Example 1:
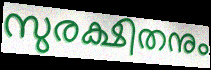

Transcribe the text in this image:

സുരക്ഷിതനും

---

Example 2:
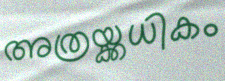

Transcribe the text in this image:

അത്രയ്ക്കധികം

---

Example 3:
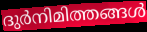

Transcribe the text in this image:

ദുർനിമിത്തങ്ങൾ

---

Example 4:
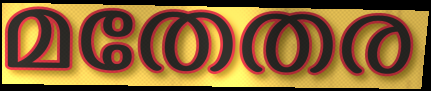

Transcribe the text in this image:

മതേതര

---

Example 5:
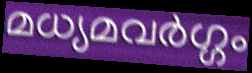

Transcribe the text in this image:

മധ്യമവർഗ്ഗം